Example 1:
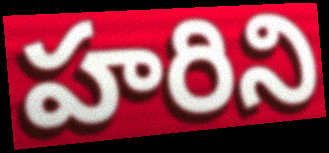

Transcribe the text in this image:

హరిని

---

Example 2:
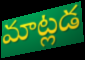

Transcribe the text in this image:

మాట్లడ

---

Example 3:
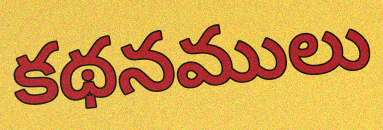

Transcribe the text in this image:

కథనములు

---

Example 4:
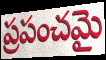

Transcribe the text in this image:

ప్రపంచమై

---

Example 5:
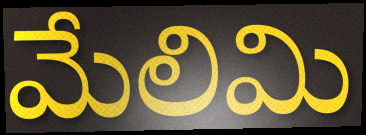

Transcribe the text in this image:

మేలిమి